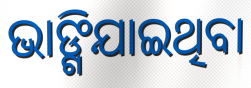
ଭାଙ୍ଗିଯାଇଥିବା